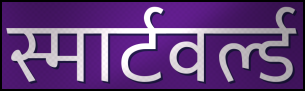
स्मार्टवर्ल्ड